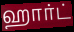
ஹார்ட்